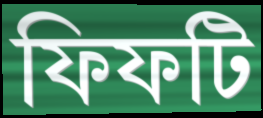
ফিফটি